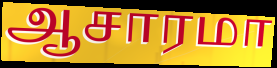
ஆசாரமா